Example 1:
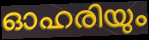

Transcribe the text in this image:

ഓഹരിയും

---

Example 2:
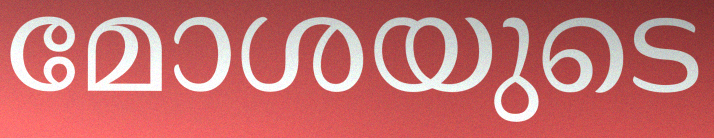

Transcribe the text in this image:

മോശയുടെ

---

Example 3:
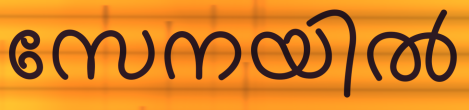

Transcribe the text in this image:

സേനയിൽ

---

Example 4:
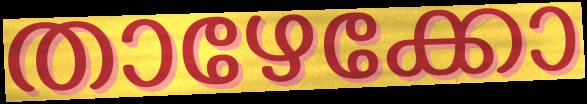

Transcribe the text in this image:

താഴേക്കോ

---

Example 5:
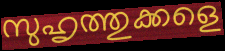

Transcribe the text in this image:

സുഹൃത്തുക്കളെ